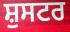
ਸ਼ੁਸਟਰ